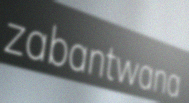
zabantwana